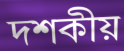
দশকীয়